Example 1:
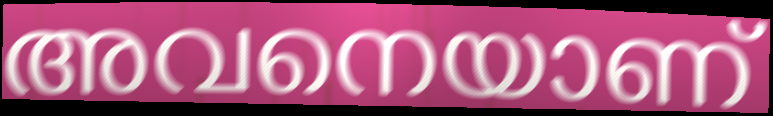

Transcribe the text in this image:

അവനെയാണ്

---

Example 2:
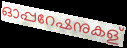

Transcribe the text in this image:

ഓപ്പറേഷനുകള്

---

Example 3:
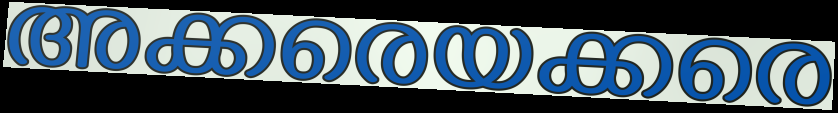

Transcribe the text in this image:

അക്കരെയക്കരെ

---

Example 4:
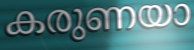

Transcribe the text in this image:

കരുണയാ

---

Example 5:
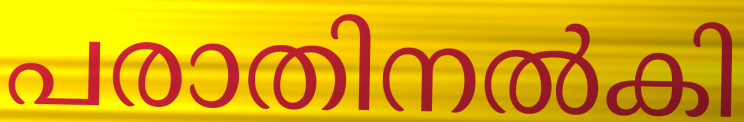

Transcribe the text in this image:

പരാതിനൽകി